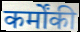
कर्मोंकी